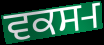
ਵਕਸ੍ਮ